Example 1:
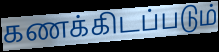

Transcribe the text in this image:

கணக்கிடப்படும்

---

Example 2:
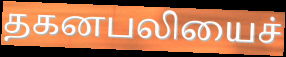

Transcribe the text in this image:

தகனபலியைச்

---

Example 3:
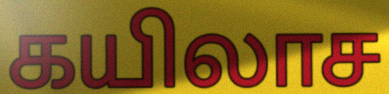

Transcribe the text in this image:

கயிலாச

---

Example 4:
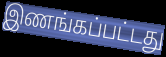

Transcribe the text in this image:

இணங்கப்பட்டது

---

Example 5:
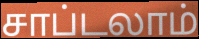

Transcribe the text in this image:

சாப்டலாம்